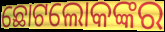
ଛୋଟଲୋକଙ୍କର